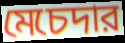
মেচেদার